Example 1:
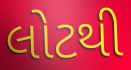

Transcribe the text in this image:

લોટથી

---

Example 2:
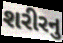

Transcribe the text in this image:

શરીરનુ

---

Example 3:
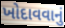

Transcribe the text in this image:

ખોદાવવાનું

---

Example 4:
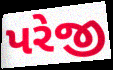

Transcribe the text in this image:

પરેજી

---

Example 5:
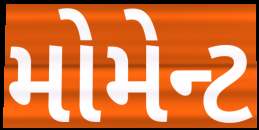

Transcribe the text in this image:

મોમેન્ટ